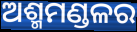
ଅଶ୍ମମଣ୍ଡଳର